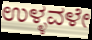
ಉಳ್ಳವಳೇ